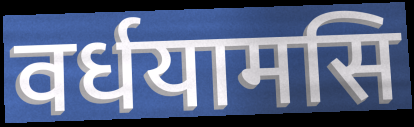
वर्धयामसि